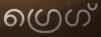
ഗ്രെഗ്